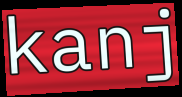
kanj